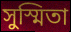
সুস্মিতা